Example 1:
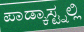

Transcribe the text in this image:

ಪಾಡ್ಕಾಸ್ಟ್ನಲ್ಲಿ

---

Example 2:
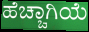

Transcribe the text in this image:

ಹೆಚ್ಚಾಗಿಯೆ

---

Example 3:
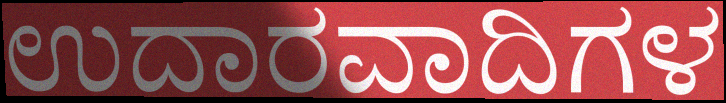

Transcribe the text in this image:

ಉದಾರವಾದಿಗಳ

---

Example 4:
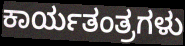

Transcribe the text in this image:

ಕಾರ್ಯತಂತ್ರಗಳು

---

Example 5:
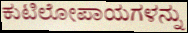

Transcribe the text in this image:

ಕುಟಿಲೋಪಾಯಗಳನ್ನು